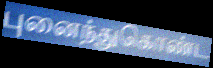
புனைந்துகொண்ட